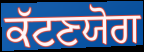
ਕੱਟਣਯੋਗ